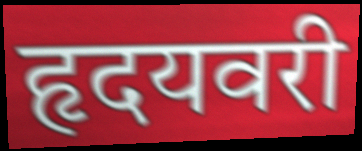
हृदयवरी